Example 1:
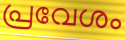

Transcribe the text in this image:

പ്രവേശം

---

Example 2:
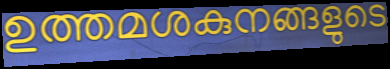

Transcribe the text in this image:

ഉത്തമശകുനങ്ങളുടെ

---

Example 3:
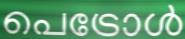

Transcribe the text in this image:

പെട്രോൾ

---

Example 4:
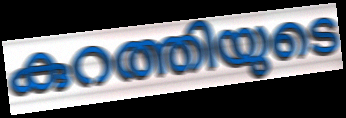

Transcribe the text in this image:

കുറത്തിയുടെ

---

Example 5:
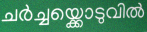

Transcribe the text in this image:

ചർച്ചയ്ക്കൊടുവിൽ